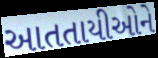
આતતાયીઓને